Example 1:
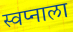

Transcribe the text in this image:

स्वप्नाला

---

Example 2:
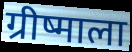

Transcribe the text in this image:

ग्रीष्माला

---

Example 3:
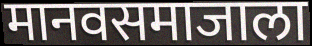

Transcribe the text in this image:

मानवसमाजाला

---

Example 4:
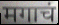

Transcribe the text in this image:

मगाचं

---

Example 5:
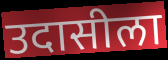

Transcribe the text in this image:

उदासीला